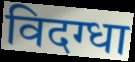
विदग्धा